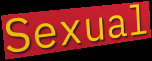
Sexual